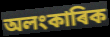
অলংকাৰিক